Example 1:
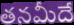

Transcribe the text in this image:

తనమీదే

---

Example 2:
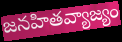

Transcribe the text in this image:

జనహితవ్యాజ్యం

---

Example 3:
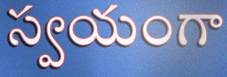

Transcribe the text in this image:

స్వయంగా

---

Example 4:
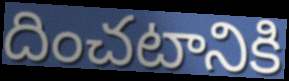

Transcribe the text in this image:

దించటానికి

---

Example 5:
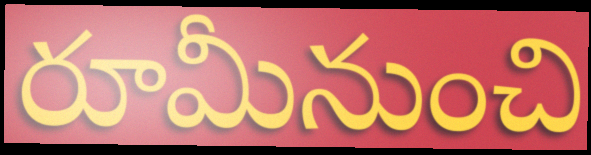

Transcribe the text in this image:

రూమీనుంచి